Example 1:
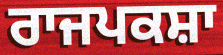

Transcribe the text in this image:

ਰਾਜਪਕਸ਼ਾ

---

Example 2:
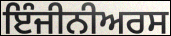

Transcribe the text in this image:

ਇੰਜੀਨੀਅਰਸ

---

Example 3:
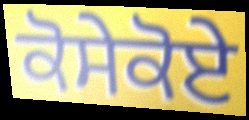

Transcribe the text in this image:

ਕੋਸੇਕੋਏ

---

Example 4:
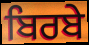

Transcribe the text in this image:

ਬਿਰਬੇ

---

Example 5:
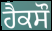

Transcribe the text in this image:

ਹੈਕਸੌ